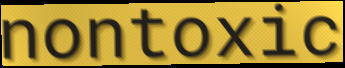
nontoxic